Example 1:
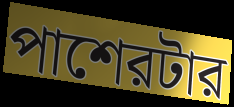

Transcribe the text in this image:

পাশেরটার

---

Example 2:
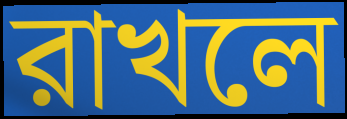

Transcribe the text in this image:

রাখলে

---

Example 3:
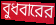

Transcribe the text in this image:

বুধবারের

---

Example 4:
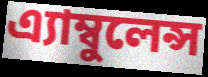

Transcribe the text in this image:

এ্যাম্বুলেন্স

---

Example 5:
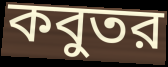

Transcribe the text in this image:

কবুতর